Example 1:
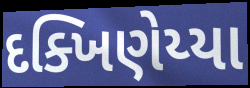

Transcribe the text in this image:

દક્ખિણેય્યા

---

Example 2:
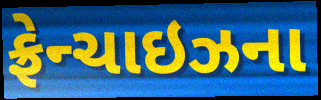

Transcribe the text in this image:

ફ્રેન્ચાઇઝના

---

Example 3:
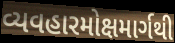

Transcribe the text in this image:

વ્યવહારમોક્ષમાર્ગથી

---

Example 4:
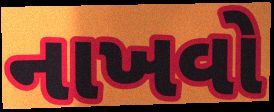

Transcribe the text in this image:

નાખવો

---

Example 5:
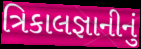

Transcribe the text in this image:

ત્રિકાલજ્ઞાનીનું